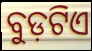
ବୁଡ଼ଟିଏ